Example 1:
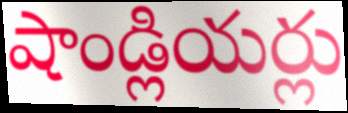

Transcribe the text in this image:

షాండ్లియర్లు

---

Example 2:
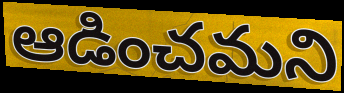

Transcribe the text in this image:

ఆడించమని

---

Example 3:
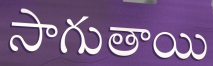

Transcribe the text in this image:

సాగుతాయి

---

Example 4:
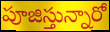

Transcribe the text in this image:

పూజిస్తున్నారో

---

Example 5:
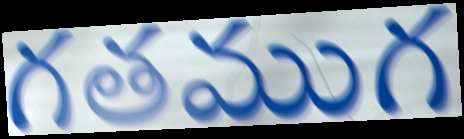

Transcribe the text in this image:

గతముగ